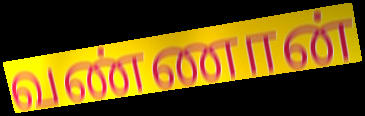
வண்ணான்